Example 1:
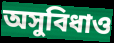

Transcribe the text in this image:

অসুবিধাও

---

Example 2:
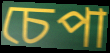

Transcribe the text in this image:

চেপা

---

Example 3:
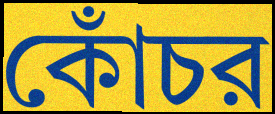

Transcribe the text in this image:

কোঁচর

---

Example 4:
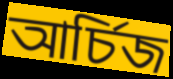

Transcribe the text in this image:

আর্চিজ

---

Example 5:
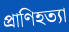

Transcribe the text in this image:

প্রাণিহত্যা